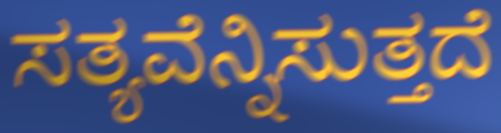
ಸತ್ಯವೆನ್ನಿಸುತ್ತದೆ